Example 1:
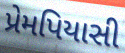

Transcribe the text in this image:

પ્રેમપિયાસી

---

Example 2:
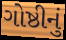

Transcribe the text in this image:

ગોષ્ઠીનું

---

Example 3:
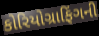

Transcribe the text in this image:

કોરિયોગ્રાફિંગની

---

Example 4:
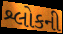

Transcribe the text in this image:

શ્લોકની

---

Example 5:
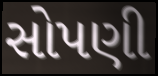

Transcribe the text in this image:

સોપણી